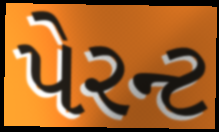
પેરન્ટ